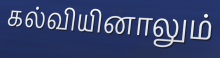
கல்வியினாலும்